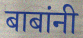
बाबांनी